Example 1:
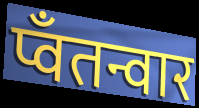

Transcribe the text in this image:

प्वॅंतन्वार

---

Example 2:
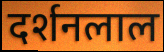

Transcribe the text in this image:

दर्शनलाल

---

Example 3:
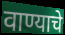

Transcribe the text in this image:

वाण्याचे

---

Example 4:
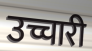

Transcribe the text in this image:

उच्चारी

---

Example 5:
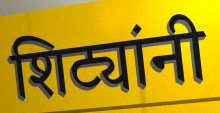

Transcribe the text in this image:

शिट्यांनी